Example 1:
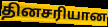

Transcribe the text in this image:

தினசரியான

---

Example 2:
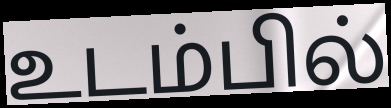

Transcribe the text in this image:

உடம்பில்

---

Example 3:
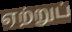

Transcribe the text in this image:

ஏற்றுப்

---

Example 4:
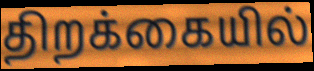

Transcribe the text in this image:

திறக்கையில்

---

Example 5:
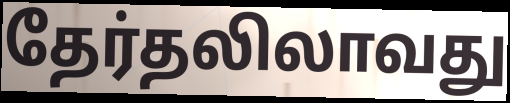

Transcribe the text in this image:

தேர்தலிலாவது